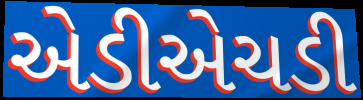
એડીએચડી